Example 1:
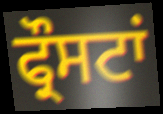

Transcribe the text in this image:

ਫ੍ਰੌਸਟਾਂ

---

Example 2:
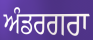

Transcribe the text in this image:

ਅੰਡਰਗਰਾ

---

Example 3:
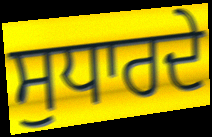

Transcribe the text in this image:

ਸੁਧਾਰਦੇ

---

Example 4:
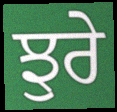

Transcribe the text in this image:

ਝੁਰੇ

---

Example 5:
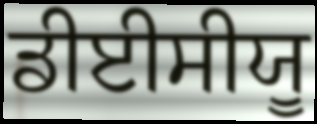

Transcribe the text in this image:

ਡੀਈਸੀਯੂ